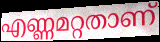
എണ്ണമറ്റതാണ്